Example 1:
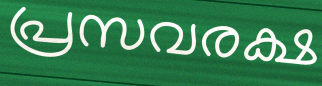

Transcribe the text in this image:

പ്രസവരക്ഷ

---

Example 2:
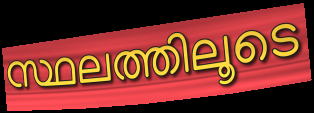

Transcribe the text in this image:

സ്ഥലത്തിലൂടെ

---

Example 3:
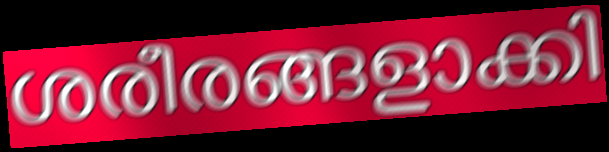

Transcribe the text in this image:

ശരീരങ്ങളാക്കി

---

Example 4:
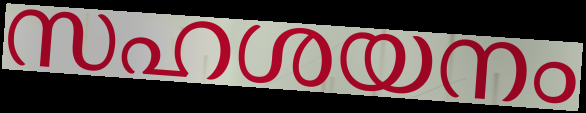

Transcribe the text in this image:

സഹശയനം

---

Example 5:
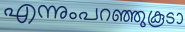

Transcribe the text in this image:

എന്നുംപറഞ്ഞുകൂടാ